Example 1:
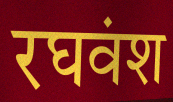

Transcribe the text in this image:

रघवंश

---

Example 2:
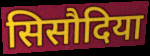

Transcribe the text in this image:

सिसौदिया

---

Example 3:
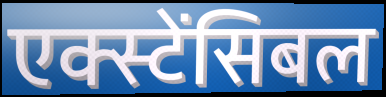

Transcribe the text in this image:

एक्स्टेंसिबल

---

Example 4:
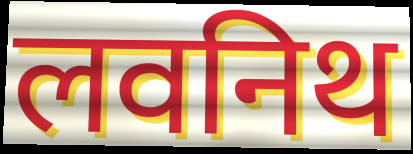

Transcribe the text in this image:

लवनिथ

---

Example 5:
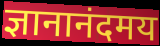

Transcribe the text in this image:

ज्ञानानंदमय